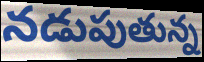
నడుపుతున్న